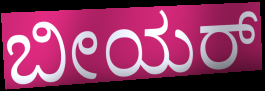
ಬೀಯರ್